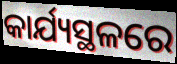
କାର୍ଯ୍ୟସ୍ଥଳରେ